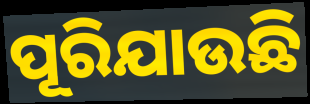
ପୂରିଯାଉଛି